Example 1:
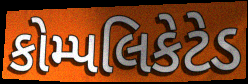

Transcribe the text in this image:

કોમ્પલિકેટેડ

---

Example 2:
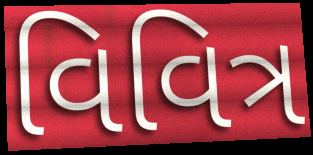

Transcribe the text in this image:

વિવિત્ર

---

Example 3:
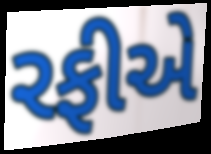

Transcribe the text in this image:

રફીએ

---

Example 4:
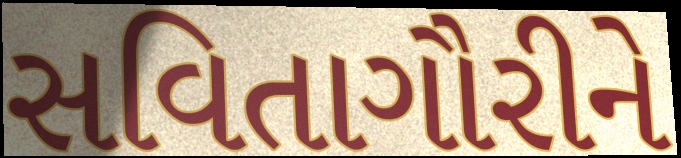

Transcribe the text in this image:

સવિતાગૌરીને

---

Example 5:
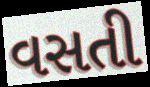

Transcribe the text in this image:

વસતી